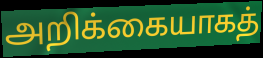
அறிக்கையாகத்